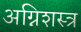
अग्निशस्त्र